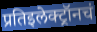
प्रतिइलेक्ट्रॉनचं